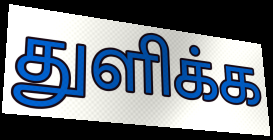
துளிக்க